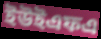
ইউইএফএ